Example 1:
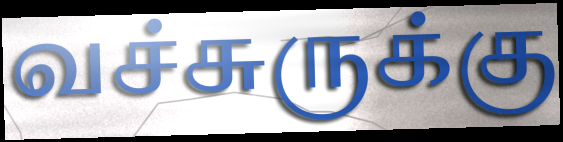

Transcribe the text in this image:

வச்சுருக்கு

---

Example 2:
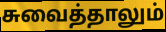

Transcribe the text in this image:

சுவைத்தாலும்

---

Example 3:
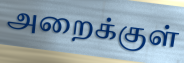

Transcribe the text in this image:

அறைக்குள்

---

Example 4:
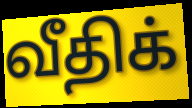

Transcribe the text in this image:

வீதிக்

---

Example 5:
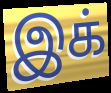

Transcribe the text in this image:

இக்